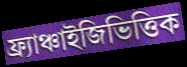
ফ্র্যাঞ্চাইজিভিত্তিক